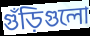
গুঁড়িগুলো